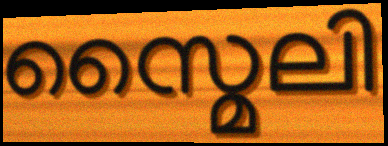
സ്മൈലി